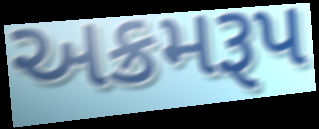
અક્રમરૂપ